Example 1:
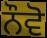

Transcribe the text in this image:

ਨੌਵੋ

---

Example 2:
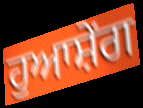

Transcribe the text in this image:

ਹੁਆਸ਼ੇਂਗ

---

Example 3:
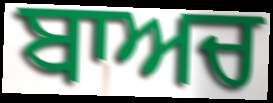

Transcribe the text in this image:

ਬਾਅਚ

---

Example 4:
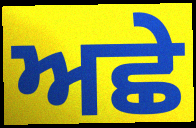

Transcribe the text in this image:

ਅਛੇ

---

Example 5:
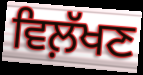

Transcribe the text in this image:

ਵਿਲ਼ੱਖਣ